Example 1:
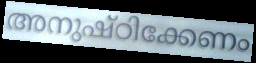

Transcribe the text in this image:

അനുഷ്ഠിക്കേണം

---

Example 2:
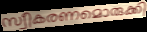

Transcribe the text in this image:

സ്വീകരണമൊരുക്കി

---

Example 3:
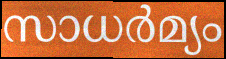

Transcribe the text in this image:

സാധർമ്യം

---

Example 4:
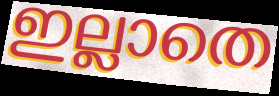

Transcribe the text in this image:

ഇല്ലാതെ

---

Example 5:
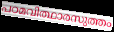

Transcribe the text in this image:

പഠമവിത്ഥാരസുത്തം